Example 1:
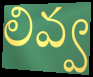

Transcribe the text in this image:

లివ్వ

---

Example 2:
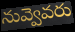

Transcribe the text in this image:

నువ్వెవరు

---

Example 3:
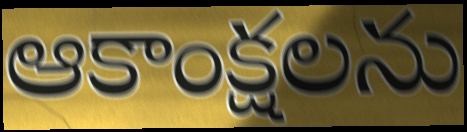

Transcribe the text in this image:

ఆకాంక్షలను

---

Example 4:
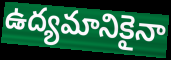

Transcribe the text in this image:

ఉద్యమానికైనా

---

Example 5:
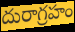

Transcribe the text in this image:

దురాగ్రహం